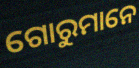
ଗୋରୁମାନେ